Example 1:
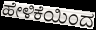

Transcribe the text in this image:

ಹೇಳಿಕೆಯಿಂದ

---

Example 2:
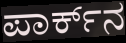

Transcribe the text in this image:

ಪಾರ್ಕ್‌ನ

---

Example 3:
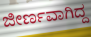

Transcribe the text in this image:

ಜೀರ್ಣವಾಗಿದ್ದ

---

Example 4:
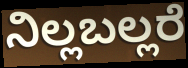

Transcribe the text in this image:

ನಿಲ್ಲಬಲ್ಲರೆ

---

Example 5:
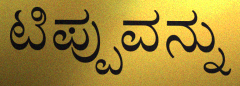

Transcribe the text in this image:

ಟಿಪ್ಪುವನ್ನು